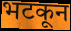
भटकून